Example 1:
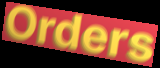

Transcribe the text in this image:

Orders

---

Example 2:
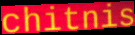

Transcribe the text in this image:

chitnis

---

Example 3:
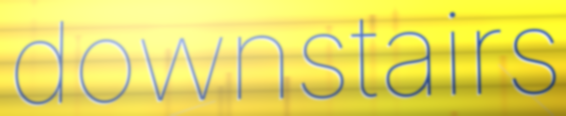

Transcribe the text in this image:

downstairs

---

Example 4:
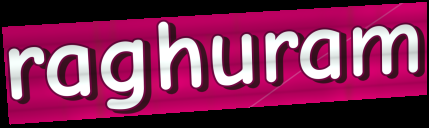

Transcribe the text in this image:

raghuram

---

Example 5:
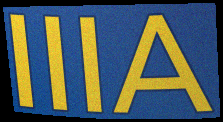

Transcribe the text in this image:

IIIA